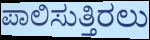
ಪಾಲಿಸುತ್ತಿರಲು